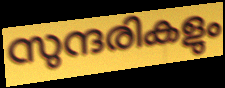
സുന്ദരികളും